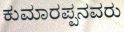
ಕುಮಾರಪ್ಪನವರು